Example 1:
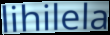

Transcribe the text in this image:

lihilela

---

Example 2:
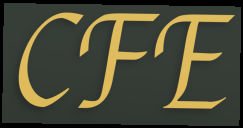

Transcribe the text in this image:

CFE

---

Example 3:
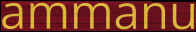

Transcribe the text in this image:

ammanu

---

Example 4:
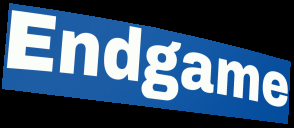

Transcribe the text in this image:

Endgame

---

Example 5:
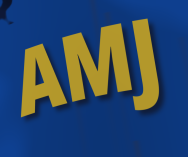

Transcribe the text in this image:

AMJ